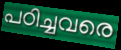
പഠിച്ചവരെ